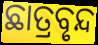
ଛାତ୍ରବୃନ୍ଦ